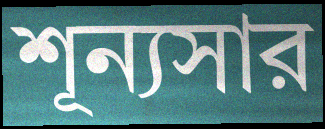
শূন্যসার